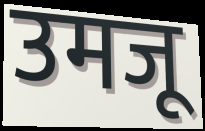
उमजू